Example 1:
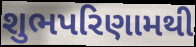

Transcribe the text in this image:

શુભપરિણામથી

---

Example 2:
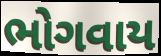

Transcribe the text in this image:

ભોગવાય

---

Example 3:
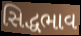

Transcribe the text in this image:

સિદ્ધભાવ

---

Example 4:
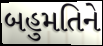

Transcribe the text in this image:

બહુમતિને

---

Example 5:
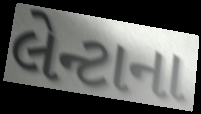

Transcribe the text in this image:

લેન્ટાના